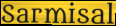
Sarmisal